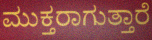
ಮುಕ್ತರಾಗುತ್ತಾರೆ